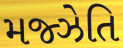
મજ્ઝેતિ